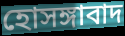
হোসঙ্গাবাদ